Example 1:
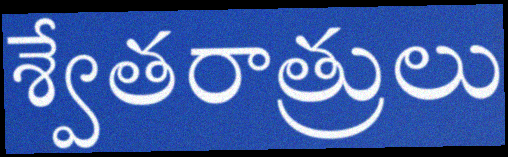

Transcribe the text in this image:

శ్వేతరాత్రులు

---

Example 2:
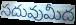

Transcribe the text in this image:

సదువుమీద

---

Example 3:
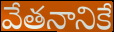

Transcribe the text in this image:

వేతనానికే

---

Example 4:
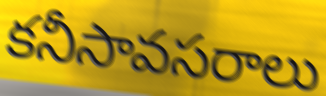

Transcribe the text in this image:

కనీసావసరాలు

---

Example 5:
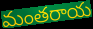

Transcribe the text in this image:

మంతరాయ